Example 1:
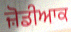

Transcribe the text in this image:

ਜ਼ੋਡੀਆਕ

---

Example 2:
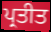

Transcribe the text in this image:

ਪ੍ਰਤੀਤ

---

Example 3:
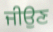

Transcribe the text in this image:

ਜੀਉਣ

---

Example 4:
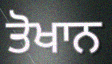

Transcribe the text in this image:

ਤੋਖਾਨ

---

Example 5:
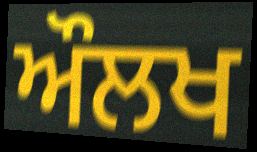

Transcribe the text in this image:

ਔਲਖ